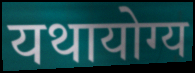
यथायोग्य